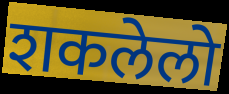
शकलेलो